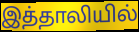
இத்தாலியில்